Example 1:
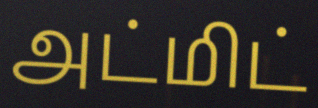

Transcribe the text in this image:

அட்மிட்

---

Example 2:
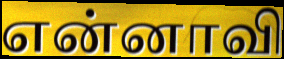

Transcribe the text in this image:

என்னாவி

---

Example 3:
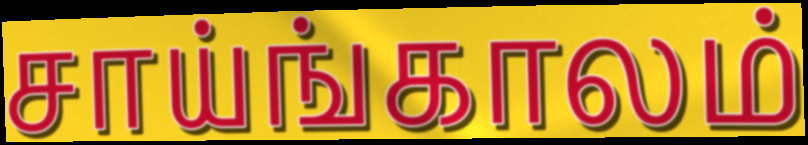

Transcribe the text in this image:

சாய்ங்காலம்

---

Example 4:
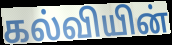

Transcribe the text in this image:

கல்வியின்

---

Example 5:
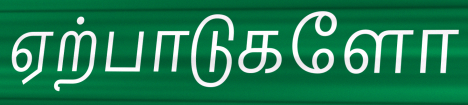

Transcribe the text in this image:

ஏற்பாடுகளோ